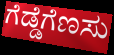
ಗೆಡ್ಡೆಗೆಣಸು